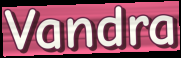
Vandra